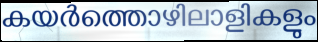
കയർത്തൊഴിലാളികളും